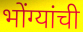
भोंग्यांची